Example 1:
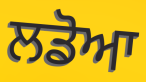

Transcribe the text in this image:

ਲਡੋਆ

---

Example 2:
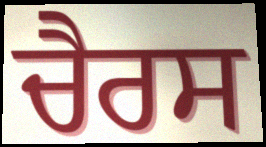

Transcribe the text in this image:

ਚੈਰਸ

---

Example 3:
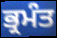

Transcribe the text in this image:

ਭ੍ਰਮੰਤ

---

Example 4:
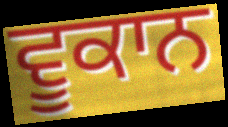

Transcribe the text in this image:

ਵੂਕਾਨ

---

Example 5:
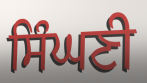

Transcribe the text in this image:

ਸਿੰਘਣੀ